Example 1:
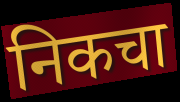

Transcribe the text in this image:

निकचा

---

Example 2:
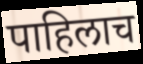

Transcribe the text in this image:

पाहिलाच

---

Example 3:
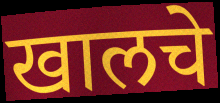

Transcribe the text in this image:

खालचे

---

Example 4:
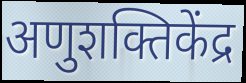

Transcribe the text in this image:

अणुशक्तिकेंद्र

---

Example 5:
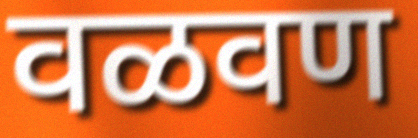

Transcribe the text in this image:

वळवण